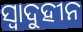
ସ୍ୱାଦୁହୀନ